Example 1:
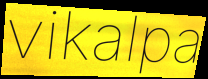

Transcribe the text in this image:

vikalpa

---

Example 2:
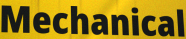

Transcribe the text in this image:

Mechanical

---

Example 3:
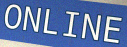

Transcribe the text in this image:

ONLINE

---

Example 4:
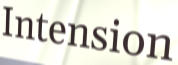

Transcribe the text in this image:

Intension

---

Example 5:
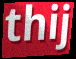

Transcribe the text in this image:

thij